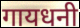
गायधनी